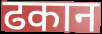
ढकान